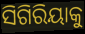
ସିଗିରିୟାକୁ